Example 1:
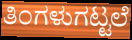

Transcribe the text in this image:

ತಿಂಗಳುಗಟ್ಟಲೆ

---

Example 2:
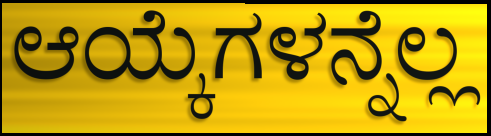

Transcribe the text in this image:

ಆಯ್ಕೆಗಳನ್ನೆಲ್ಲ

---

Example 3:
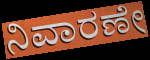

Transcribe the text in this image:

ನಿವಾರಣೇ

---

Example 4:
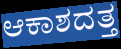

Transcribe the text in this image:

ಆಕಾಶದತ್ತ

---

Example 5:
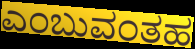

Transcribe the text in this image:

ಎಂಬುವಂತಹ